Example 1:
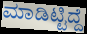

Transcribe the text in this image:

ಮಾಡಿಟ್ಟಿದ್ದೆ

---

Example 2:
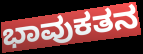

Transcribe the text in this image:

ಭಾವುಕತನ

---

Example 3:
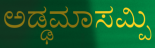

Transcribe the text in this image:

ಅಡ್ಢಮಾಸಮ್ಪಿ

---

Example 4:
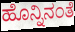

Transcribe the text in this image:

ಹೊನ್ನಿನಂತೆ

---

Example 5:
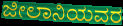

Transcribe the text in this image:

ಜೀಲಾನಿಯವರ